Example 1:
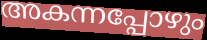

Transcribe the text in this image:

അകന്നപ്പോഴും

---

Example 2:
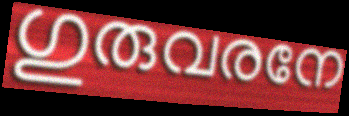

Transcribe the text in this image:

ഗുരുവരനേ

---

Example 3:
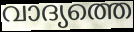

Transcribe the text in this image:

വാദ്യത്തെ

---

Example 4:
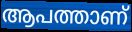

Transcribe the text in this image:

ആപത്താണ്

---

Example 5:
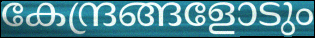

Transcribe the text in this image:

കേന്ദ്രങ്ങളോടും